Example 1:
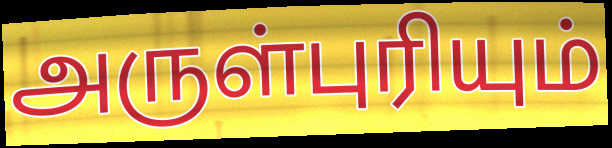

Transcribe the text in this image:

அருள்புரியும்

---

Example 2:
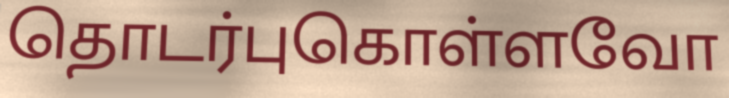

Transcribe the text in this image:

தொடர்புகொள்ளவோ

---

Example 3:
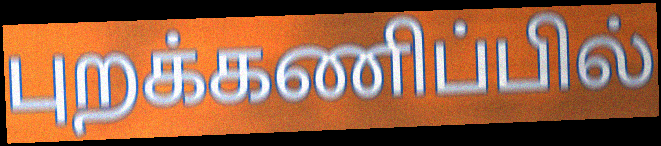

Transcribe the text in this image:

புறக்கணிப்பில்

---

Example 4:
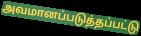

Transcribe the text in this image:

அவமானப்படுத்தப்பட்டு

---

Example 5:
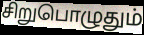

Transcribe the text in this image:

சிறுபொழுதும்